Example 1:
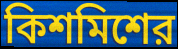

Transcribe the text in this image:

কিশমিশের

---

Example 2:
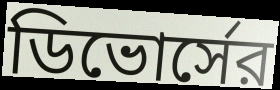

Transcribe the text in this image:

ডিভোর্সের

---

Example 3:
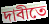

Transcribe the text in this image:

দাবীতে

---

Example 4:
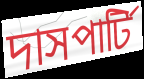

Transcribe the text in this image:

দাসপার্টি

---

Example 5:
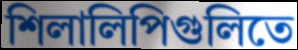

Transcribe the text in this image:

শিলালিপিগুলিতে